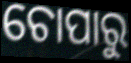
ଚୋପାରୁ